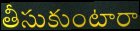
తీసుకుంటారా